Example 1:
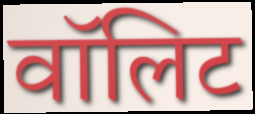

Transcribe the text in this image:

वॉलिट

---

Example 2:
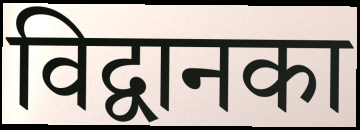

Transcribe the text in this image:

विद्वानका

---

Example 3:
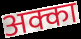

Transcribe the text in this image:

अक्का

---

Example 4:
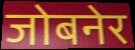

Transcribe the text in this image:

जोबनेर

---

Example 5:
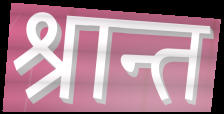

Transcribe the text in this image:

श्रान्त